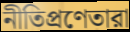
নীতিপ্রণেতারা